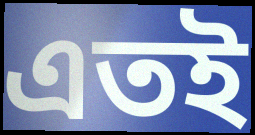
এতই